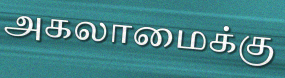
அகலாமைக்கு